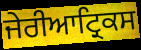
ਜੇਰੀਆਟ੍ਰਿਕਸ